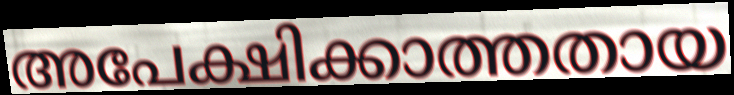
അപേക്ഷിക്കാത്തതായ